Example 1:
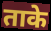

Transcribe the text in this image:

ताके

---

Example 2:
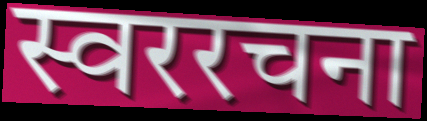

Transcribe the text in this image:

स्वररचना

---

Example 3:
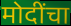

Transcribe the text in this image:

मोदींचा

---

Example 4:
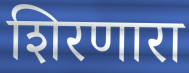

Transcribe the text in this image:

शिरणारा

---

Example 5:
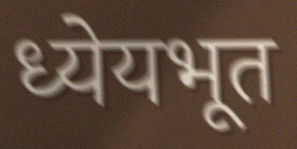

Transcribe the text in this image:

ध्येयभूत